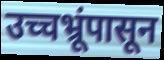
उच्चभ्रूंपासून